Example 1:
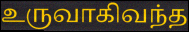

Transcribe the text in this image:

உருவாகிவந்த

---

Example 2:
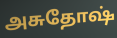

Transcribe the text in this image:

அசுதோஷ்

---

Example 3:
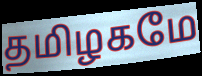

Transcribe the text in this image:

தமிழகமே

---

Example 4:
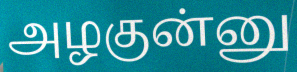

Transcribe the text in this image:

அழகுன்னு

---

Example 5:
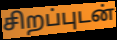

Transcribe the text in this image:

சிறப்புடன்